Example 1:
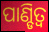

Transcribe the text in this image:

ପାଣ୍ଡିତ୍ୱ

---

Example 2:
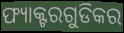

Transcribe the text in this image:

ଫ୍ୟାକ୍ଟରଗୁଡିକର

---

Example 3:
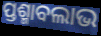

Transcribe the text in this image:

ପ୍ତଶ୍ମାବଲାଭ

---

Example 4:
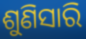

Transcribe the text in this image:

ଶୁଣିସାରି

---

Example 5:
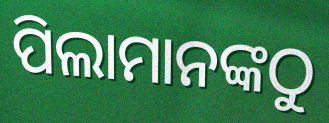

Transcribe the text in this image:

ପିଲାମାନଙ୍କଠୁ